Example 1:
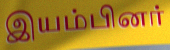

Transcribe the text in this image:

இயம்பினர்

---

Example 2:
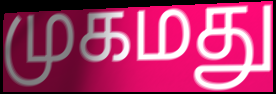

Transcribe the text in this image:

முகமது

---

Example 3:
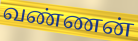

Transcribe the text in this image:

வண்ணன்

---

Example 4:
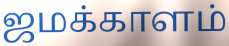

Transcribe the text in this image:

ஜமக்காளம்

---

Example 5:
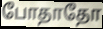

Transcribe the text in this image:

போதாதோ